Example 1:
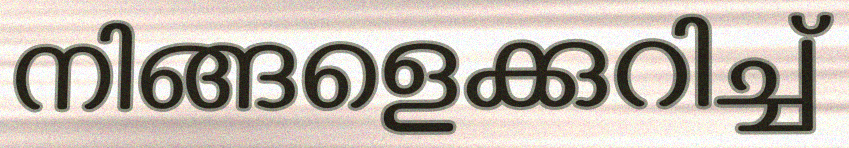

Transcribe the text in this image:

നിങ്ങളെക്കുറിച്ച്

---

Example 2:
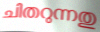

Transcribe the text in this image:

ചിതറുന്നതു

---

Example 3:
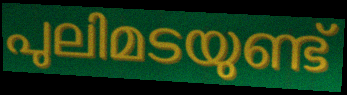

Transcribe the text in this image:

പുലിമടയുണ്ട്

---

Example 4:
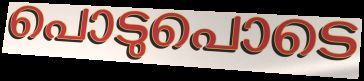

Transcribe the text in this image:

പൊടുപൊടെ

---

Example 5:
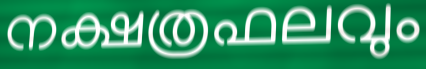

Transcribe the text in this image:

നക്ഷത്രഫലവും